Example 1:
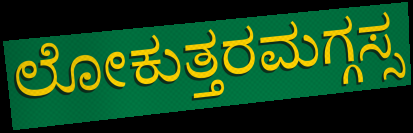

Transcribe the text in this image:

ಲೋಕುತ್ತರಮಗ್ಗಸ್ಸ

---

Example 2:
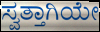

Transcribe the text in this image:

ಸ್ವತ್ತಾಗಿಯೇ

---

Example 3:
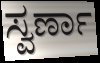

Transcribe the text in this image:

ಸ್ವರ್ಣಾ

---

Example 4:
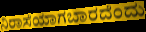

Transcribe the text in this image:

ನಿರಾಸೆಯಾಗಬಾರದೆಂದು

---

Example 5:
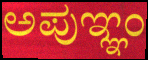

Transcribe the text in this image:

ಅಪುಞ್ಞಂ